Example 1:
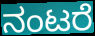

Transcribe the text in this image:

ನಂಟರೆ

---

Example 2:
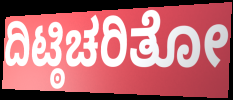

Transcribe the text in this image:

ದಿಟ್ಠಿಚರಿತೋ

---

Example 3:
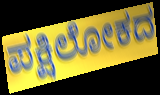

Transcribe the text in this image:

ಪಕ್ಷಿಲೋಕದ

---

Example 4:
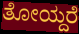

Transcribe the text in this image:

ತೋಯ್ದರೆ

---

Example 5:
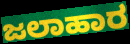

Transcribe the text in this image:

ಜಲಾಹಾರ